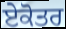
ਏਕੋਤਰ